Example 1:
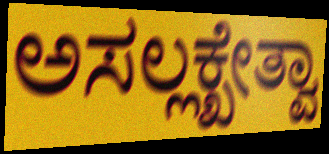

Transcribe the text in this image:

ಅಸಲ್ಲಕ್ಖೇತ್ವಾ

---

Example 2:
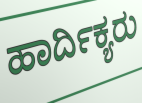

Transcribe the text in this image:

ಹಾರ್ದಿಕ್ಯರು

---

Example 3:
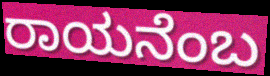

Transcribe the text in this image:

ರಾಯನೆಂಬ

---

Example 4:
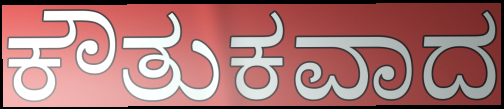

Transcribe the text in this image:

ಕೌತುಕವಾದ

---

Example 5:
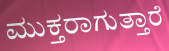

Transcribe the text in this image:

ಮುಕ್ತರಾಗುತ್ತಾರೆ